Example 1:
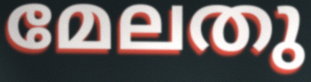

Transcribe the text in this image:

മേലതു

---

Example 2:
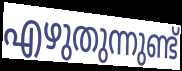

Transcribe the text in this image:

എഴുതുന്നുണ്ട്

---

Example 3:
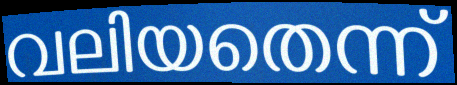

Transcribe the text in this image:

വലിയതെന്ന്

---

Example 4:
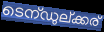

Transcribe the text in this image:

ടെന്ഡുല്ക്കര്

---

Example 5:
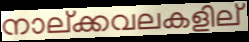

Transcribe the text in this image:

നാല്ക്കവലകളില്